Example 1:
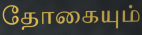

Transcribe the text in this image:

தோகையும்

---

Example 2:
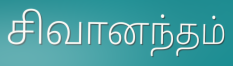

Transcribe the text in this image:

சிவானந்தம்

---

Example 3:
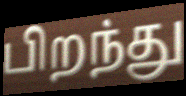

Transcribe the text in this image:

பிறந்து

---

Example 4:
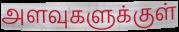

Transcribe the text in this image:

அளவுகளுக்குள்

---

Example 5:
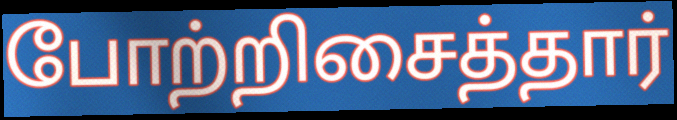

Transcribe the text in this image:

போற்றிசைத்தார்